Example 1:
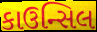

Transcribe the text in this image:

કાઉન્સિલ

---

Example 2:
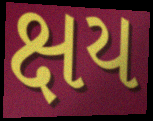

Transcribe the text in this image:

ક્ષય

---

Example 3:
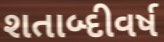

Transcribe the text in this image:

શતાબ્દીવર્ષ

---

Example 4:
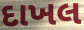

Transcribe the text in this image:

દાખલ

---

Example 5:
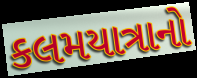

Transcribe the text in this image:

કલમયાત્રાનો